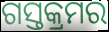
ଗସ୍ତକ୍ରମର